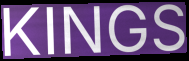
KINGS